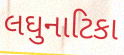
લઘુનાટિકા